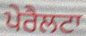
ਪੇਰੈਲਟਾ